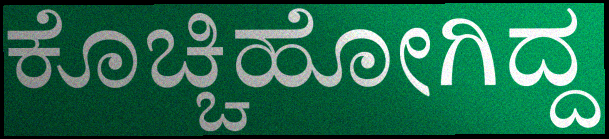
ಕೊಚ್ಚಿಹೋಗಿದ್ದ